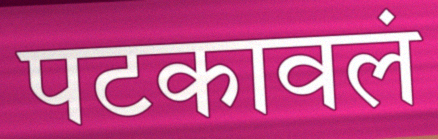
पटकावलं